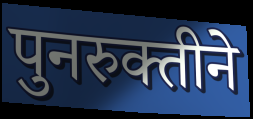
पुनरुक्तीने